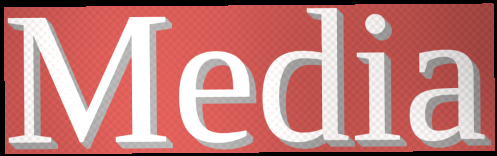
Media